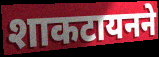
शाकटायनने